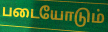
படையோடும்